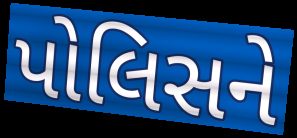
પોલિસને